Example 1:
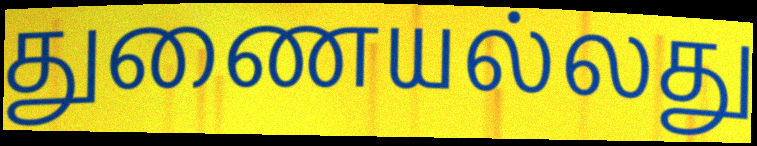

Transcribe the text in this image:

துணையல்லது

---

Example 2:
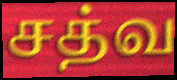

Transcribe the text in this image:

சத்வ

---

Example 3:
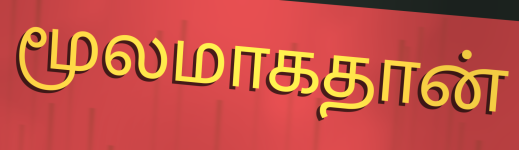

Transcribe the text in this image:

மூலமாகதான்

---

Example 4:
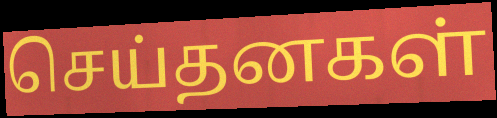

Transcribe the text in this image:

செய்தனகள்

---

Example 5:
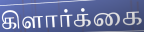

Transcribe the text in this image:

கிளார்க்கை